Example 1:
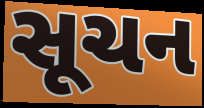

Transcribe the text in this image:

સૂચન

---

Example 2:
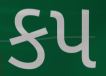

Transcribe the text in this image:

કપ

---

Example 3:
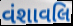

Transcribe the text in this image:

વંશાવલિ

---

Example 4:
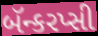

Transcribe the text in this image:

બૅન્કરપ્સી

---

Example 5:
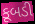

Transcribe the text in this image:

કૂબડી